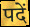
पदें